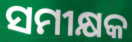
ସମୀକ୍ଷକ